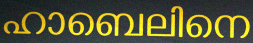
ഹാബെലിനെ